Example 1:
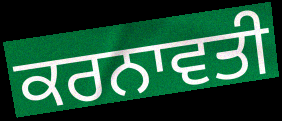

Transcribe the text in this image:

ਕਰਨਾਵਤੀ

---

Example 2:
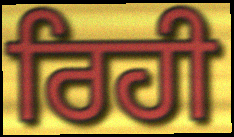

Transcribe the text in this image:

ਰਿਹੀ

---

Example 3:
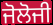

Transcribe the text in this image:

ਜੋਲੋਜੀ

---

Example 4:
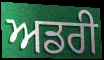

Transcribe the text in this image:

ਅਡਰੀ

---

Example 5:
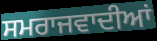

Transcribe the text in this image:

ਸਮਰਾਜਵਾਦੀਆਂ